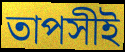
তাপসীই